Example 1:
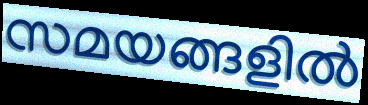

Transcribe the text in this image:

സമയങ്ങളിൽ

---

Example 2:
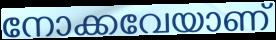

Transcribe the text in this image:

നോക്കവേയാണ്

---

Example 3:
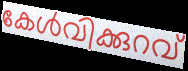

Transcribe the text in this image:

കേൾവിക്കുറവ്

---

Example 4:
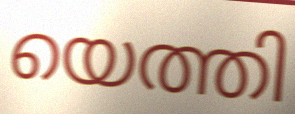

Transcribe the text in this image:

യെത്തി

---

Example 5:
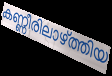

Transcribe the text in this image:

കണ്ണീരിലാഴ്ത്തിയ